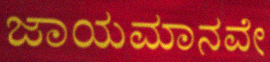
ಜಾಯಮಾನವೇ